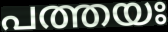
പത്തയഃ